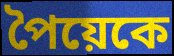
পৈয়েকে